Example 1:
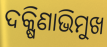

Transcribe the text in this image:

ଦକ୍ଷିଣାଭିମୁଖ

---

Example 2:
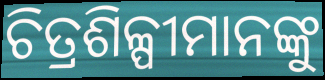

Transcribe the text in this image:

ଚିତ୍ରଶିଳ୍ପୀମାନଙ୍କୁ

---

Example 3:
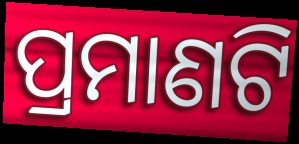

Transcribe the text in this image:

ପ୍ରମାଣଟି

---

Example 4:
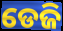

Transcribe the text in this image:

ଡେଜି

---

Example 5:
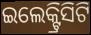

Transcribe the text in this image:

ଇଲେକ୍ଟ୍ରିସିଟି